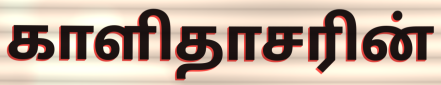
காளிதாசரின்